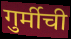
गुर्मीची